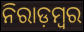
ନିରାଡ଼ମ୍ବର